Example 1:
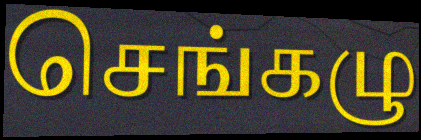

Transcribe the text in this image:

செங்கழு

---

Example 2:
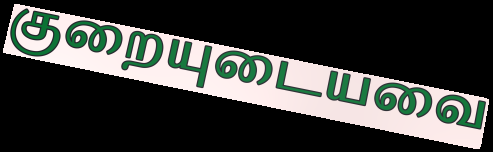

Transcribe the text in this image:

குறையுடையவை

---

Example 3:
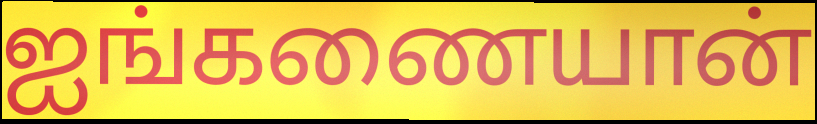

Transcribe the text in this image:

ஐங்கணையான்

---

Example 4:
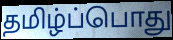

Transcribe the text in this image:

தமிழ்ப்பொது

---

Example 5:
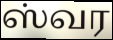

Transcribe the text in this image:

ஸ்வர